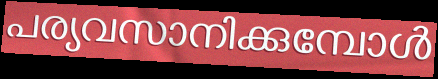
പര്യവസാനിക്കുമ്പോൾ